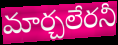
మార్చలేరనీ